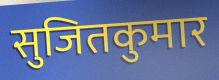
सुजितकुमार